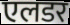
एलडर